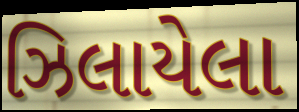
ઝિલાયેલા